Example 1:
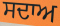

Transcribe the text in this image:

ਸਦਾਅ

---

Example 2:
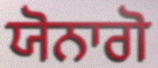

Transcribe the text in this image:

ਯੋਨਾਗੋ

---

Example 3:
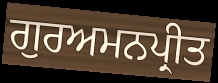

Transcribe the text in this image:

ਗੁਰਅਮਨਪ੍ਰੀਤ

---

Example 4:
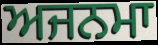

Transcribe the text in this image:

ਅਜਨਮਾ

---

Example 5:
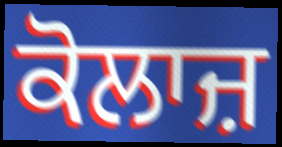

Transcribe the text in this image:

ਕੋਲਾਜ਼